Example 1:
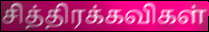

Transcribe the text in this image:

சித்திரக்கவிகள்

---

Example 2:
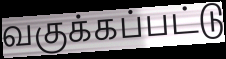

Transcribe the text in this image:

வகுக்கப்பட்டு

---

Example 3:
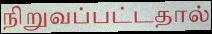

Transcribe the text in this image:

நிறுவப்பட்டதால்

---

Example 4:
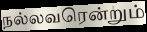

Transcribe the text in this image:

நல்லவரென்றும்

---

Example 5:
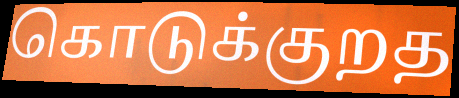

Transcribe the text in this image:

கொடுக்குறத